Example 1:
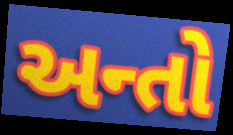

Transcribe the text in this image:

અન્તો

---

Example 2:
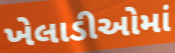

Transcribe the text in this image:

ખેલાડીઓમાં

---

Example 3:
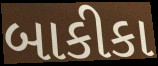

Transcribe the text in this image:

બાકીકા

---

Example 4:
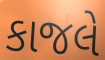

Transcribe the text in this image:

કાજલે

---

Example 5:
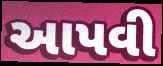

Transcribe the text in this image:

આપવી